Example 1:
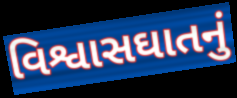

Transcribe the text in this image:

વિશ્વાસઘાતનું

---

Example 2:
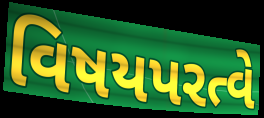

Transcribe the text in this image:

વિષયપરત્વે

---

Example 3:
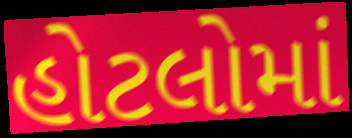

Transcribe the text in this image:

હોટલોમાં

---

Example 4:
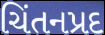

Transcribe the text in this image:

ચિંતનપ્રદ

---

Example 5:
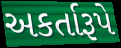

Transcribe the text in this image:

અકર્તારૂપે